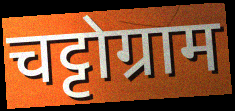
चट्टोग्राम